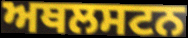
ਅਥਲਸਟਨ